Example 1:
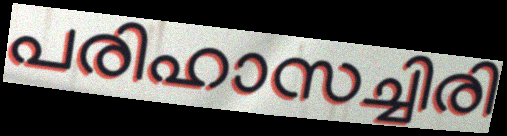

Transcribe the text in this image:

പരിഹാസച്ചിരി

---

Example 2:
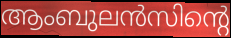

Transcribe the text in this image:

ആംബുലൻസിന്റെ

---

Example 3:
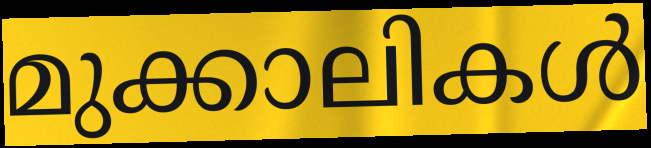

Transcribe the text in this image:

മുക്കാലികൾ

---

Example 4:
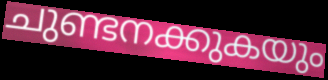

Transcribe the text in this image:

ചുണ്ടനക്കുകയും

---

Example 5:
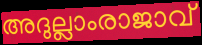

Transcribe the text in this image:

അദുല്ലാംരാജാവ്